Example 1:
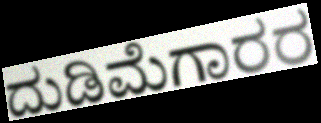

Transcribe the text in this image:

ದುಡಿಮೆಗಾರರ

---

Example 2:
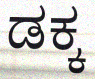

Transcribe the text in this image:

ಡಕ್ಕ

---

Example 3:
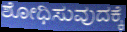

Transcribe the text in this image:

ಶೋಧಿಸುವುದಕ್ಕೆ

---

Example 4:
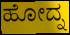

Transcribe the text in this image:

ಹೋದ್ನ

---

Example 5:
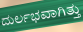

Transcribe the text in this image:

ದುರ್ಲಭವಾಗಿತ್ತು